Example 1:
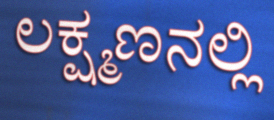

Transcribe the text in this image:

ಲಕ್ಷ್ಮಣನಲ್ಲಿ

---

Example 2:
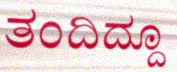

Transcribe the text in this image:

ತಂದಿದ್ದೂ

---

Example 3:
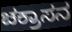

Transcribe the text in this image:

ಚಕ್ರಾಸನ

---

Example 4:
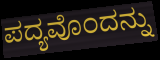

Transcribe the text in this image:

ಪದ್ಯವೊಂದನ್ನು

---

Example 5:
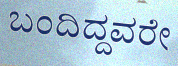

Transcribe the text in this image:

ಬಂದಿದ್ದವರೇ